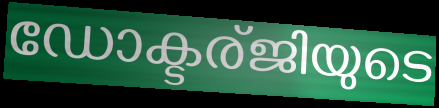
ഡോക്ടര്ജിയുടെ